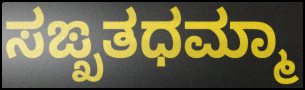
ಸಙ್ಖತಧಮ್ಮಾ